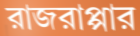
রাজরাপ্পার